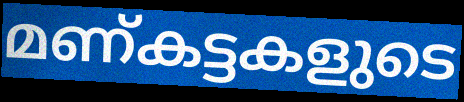
മണ്കട്ടകളുടെ